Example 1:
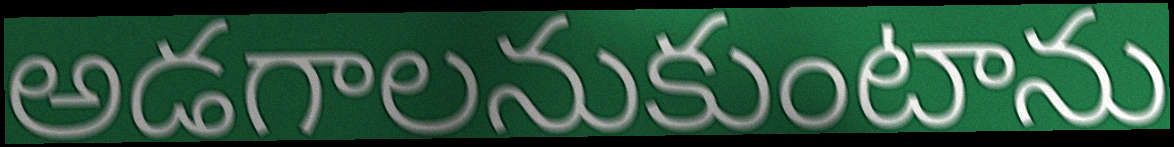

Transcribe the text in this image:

అడగాలనుకుంటాను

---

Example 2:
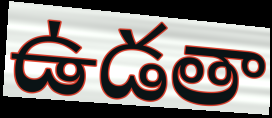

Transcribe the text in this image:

ఉడతా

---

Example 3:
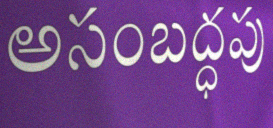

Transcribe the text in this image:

అసంబద్ధపు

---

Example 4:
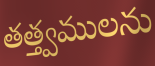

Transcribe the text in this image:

తత్త్వములను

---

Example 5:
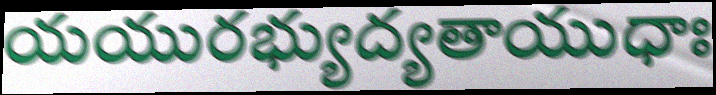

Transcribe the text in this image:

యయురభ్యుద్యతాయుధాః